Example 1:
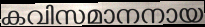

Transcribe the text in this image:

കവിസമാനനായ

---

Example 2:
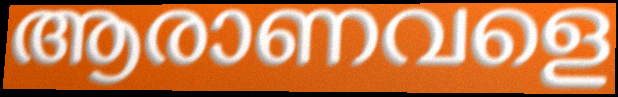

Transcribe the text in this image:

ആരാണവളെ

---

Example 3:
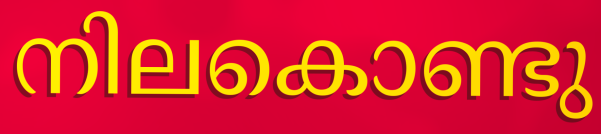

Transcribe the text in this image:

നിലകൊണ്ടു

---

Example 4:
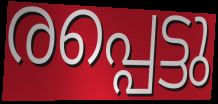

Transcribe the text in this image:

രപ്പെട്ടു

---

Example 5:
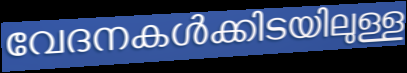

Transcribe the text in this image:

വേദനകൾക്കിടയിലുള്ള